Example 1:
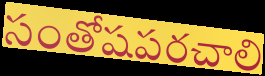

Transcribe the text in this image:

సంతోషపరచాలి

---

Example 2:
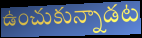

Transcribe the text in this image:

ఉంచుకున్నాడట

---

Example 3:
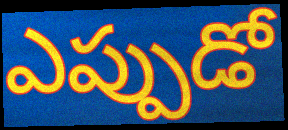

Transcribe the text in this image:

ఎప్పుడో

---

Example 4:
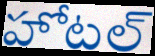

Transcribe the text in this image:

హోటల్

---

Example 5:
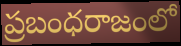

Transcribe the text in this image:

ప్రబంధరాజంలో